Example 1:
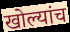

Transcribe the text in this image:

खोल्यांच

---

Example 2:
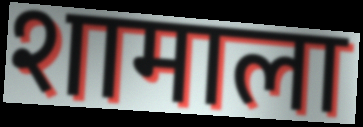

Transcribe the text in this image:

शामाला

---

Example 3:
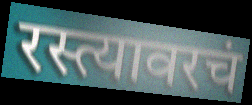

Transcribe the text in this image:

रस्त्यावरचं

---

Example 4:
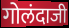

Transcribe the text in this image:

गोलंदाजी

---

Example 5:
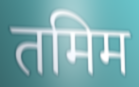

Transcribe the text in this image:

तमिम